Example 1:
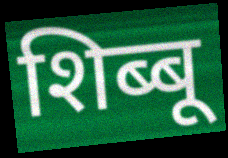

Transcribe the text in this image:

शिब्बू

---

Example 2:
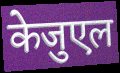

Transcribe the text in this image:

केजुएल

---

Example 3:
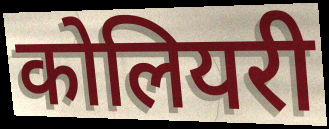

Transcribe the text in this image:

कोलियरी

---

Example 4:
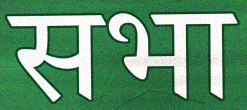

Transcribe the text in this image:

सभा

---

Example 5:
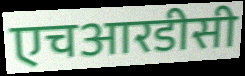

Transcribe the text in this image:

एचआरडीसी